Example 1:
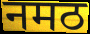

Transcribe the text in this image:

नमठ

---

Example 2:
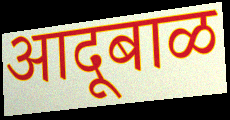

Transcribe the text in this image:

आदूबाळ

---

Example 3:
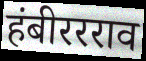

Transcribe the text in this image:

हंबीररराव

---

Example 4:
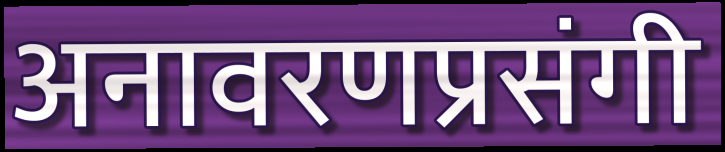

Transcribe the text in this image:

अनावरणप्रसंगी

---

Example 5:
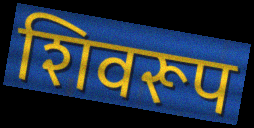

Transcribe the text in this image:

शिवरूप